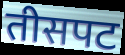
तीसपट